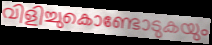
വിളിച്ചുകൊണ്ടോടുകയും